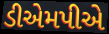
ડીએમપીએ